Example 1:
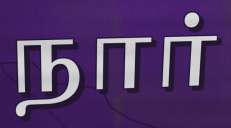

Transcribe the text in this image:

நார்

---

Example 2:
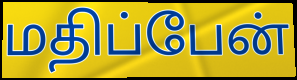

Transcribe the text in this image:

மதிப்பேன்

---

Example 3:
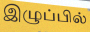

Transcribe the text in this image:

இழுப்பில்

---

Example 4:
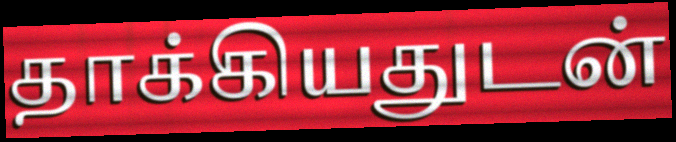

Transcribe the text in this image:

தாக்கியதுடன்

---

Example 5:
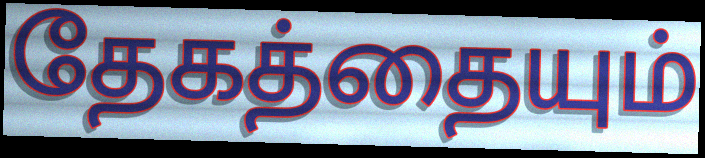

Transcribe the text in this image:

தேகத்தையும்